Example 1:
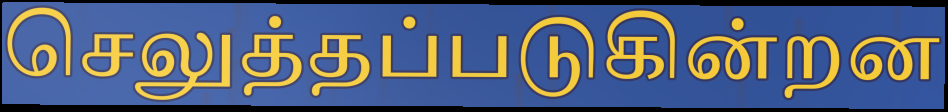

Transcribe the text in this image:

செலுத்தப்படுகின்றன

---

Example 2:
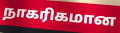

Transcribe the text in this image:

நாகரிகமான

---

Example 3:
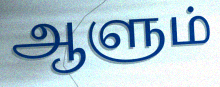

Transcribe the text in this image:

ஆளும்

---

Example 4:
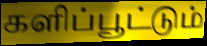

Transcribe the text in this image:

களிப்பூட்டும்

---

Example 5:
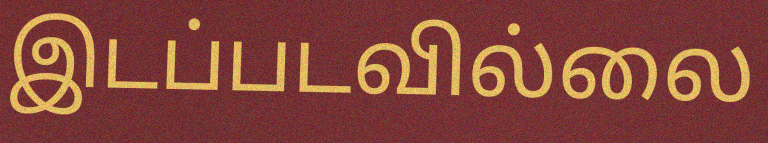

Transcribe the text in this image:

இடப்படவில்லை